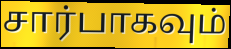
சார்பாகவும்